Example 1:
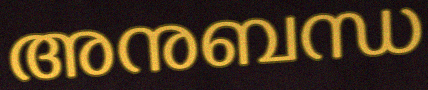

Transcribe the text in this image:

അനുബന്ധ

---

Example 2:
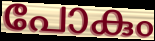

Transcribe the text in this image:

പോകും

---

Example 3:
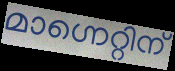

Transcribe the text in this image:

മാഗ്നെറ്റിന്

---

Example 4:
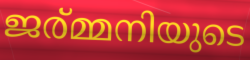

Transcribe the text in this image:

ജര്മ്മനിയുടെ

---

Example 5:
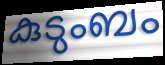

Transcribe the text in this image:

കുടുംബം